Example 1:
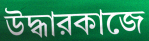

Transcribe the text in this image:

উদ্ধারকাজে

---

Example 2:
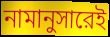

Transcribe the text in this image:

নামানুসারেই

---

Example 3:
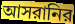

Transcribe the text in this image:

আসরানির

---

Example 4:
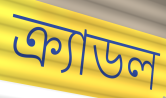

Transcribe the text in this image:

ক্র্যাডল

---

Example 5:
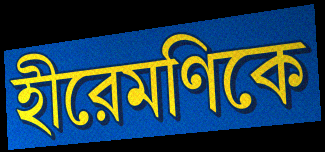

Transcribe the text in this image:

হীরেমণিকে